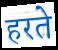
हरते